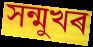
সন্মুখৰ